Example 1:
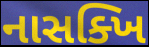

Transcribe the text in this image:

નાસક્ખિ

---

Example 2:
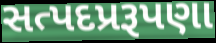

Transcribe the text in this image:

સત્પદપ્રરૂપણા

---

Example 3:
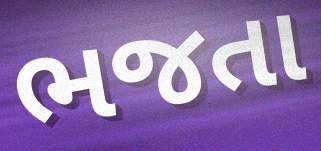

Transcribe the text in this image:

ભજતા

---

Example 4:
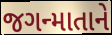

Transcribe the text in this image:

જગન્માતાને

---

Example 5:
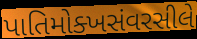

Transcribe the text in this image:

પાતિમોક્ખસંવરસીલે